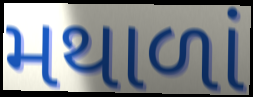
મથાળાં